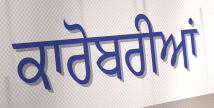
ਕਾਰੋਬਰੀਆਂ